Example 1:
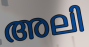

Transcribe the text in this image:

അലി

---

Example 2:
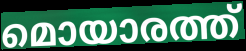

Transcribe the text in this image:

മൊയാരത്ത്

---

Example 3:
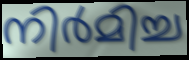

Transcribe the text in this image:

നിർമിച്ച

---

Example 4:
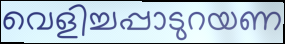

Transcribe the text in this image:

വെളിച്ചപ്പാടുറയണ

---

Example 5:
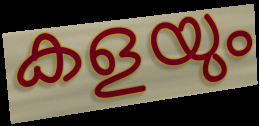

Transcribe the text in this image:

കളയും